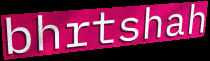
bhrtshah